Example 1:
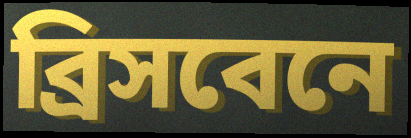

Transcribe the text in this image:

ব্রিসবেনে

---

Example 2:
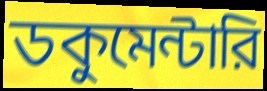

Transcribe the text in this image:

ডকুমেন্টারি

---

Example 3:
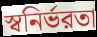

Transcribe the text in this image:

স্বনির্ভরতা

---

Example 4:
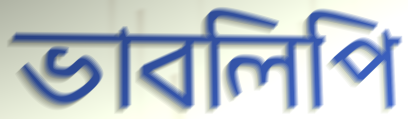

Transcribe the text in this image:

ভাবলিপি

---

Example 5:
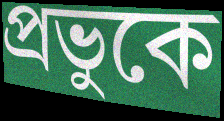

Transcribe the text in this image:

প্রভুকে